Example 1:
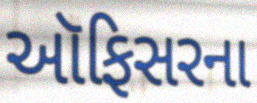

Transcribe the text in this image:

ઑફિસરના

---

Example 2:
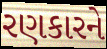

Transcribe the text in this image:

રણકારને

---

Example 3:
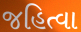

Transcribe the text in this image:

જહિત્વા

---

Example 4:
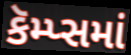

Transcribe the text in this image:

કૅમ્પ્સમાં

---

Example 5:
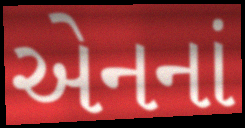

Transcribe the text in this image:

એનનાં